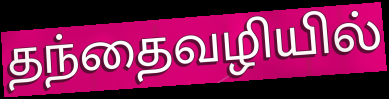
தந்தைவழியில்